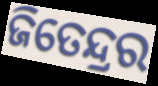
ଜିତେନ୍ଦ୍ରର